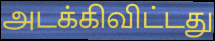
அடக்கிவிட்டது